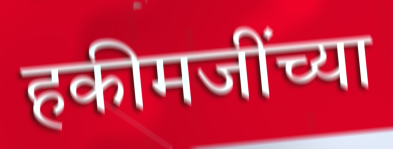
हकीमजींच्या